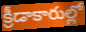
క్రీడాకారుల్లో